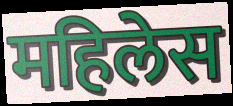
महिलेस